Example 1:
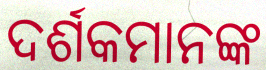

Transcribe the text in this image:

ଦର୍ଶକମାନଙ୍କ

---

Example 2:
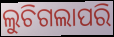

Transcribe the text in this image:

ଲୁଚିଗଲାପରି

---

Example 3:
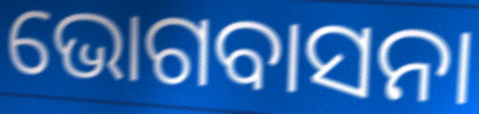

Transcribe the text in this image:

ଭୋଗବାସନା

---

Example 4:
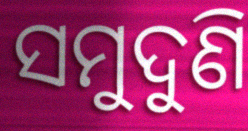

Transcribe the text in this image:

ସମୁଦୁଣି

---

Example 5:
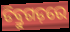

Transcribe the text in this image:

ଡିବ୍ରୁଗଡ଼ରେ